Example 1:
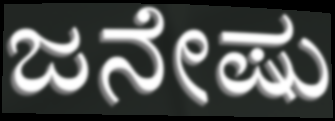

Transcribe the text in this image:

ಜನೇಷು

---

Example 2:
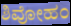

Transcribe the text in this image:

ಶಿವೋಹಂ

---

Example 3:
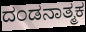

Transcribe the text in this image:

ದಂಡನಾತ್ಮಕ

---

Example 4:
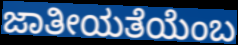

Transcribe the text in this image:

ಜಾತೀಯತೆಯೆಂಬ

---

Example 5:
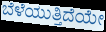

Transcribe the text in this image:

ಬೆಳೆಯುತ್ತಿದೆಯೇ